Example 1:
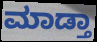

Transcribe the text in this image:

ಮಾಡ್ತಾ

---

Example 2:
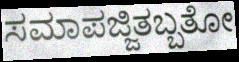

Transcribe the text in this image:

ಸಮಾಪಜ್ಜಿತಬ್ಬತೋ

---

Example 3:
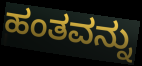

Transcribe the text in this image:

ಹಂತವನ್ನು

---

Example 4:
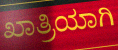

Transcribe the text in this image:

ಖಾತ್ರಿಯಾಗಿ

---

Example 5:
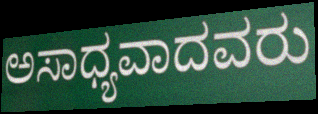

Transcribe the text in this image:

ಅಸಾಧ್ಯವಾದವರು